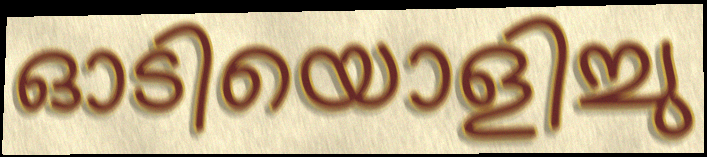
ഓടിയൊളിച്ചു